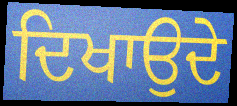
ਦਿਖਾਉਦੇ